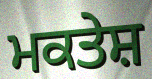
ਮਕਤੇਸ਼